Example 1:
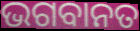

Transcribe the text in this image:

ଭଗବାନତ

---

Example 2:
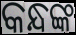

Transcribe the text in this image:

କନ୍ଧଙ୍କ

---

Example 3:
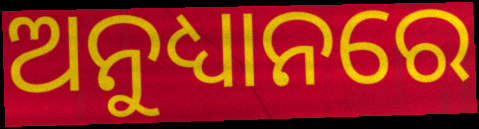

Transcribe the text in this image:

ଅନୁଧ୍ୟାନରେ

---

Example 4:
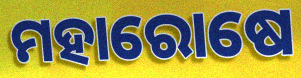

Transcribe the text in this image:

ମହାରୋଷେ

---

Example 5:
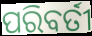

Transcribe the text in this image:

ପରିବର୍ତୀ